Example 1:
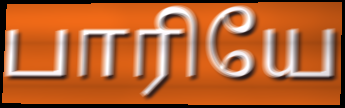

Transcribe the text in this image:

பாரியே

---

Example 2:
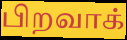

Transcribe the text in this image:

பிறவாக்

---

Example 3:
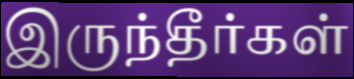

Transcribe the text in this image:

இருந்தீர்கள்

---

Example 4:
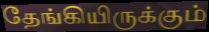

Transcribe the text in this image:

தேங்கியிருக்கும்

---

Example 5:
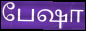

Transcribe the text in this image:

பேஷா